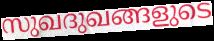
സുഖദുഖങ്ങളുടെ